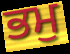
ਭਮੁ